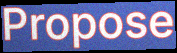
Propose